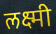
लक्ष्मी